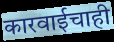
कारवाईचाही